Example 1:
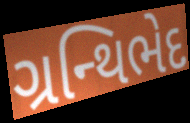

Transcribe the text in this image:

ગ્રન્થિભેદ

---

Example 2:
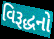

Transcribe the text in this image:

વિરૂદ્ધનો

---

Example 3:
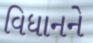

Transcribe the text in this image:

વિધાનને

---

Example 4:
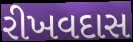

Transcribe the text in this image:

રીખવદાસ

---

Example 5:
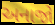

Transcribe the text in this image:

અનાજો